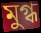
মুগ্ধ